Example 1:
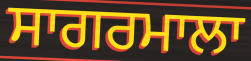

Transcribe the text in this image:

ਸਾਗਰਮਾਲਾ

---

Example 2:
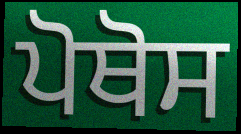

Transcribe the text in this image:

ਪੋਥੋਸ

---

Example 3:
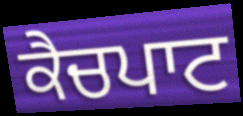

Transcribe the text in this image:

ਕੈਚਪਾਟ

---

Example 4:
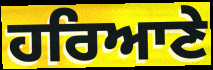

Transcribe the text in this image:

ਹਰਿਆਣੇ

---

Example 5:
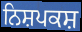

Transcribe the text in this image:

ਨਿਸ਼ਪਕਸ਼